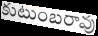
కుటుంబరావు